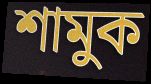
শামুক